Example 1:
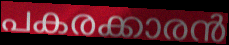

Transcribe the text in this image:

പകരക്കാരൻ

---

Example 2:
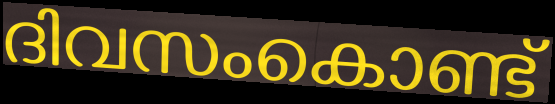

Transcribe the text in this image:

ദിവസംകൊണ്ട്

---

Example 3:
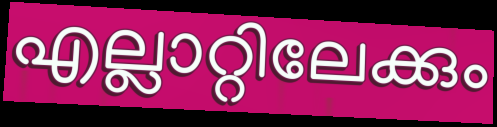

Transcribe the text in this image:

എല്ലാറ്റിലേക്കും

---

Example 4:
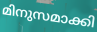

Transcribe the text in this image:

മിനുസമാക്കി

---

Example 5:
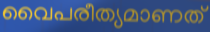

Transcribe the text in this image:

വൈപരീത്യമാണത്